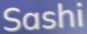
Sashi